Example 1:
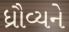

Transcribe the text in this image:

ધ્રૌવ્યને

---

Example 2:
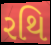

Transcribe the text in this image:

રથિ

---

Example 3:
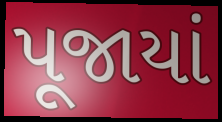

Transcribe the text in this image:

પૂજાયાં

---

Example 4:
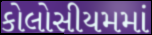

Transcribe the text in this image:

કોલોસીયમમાં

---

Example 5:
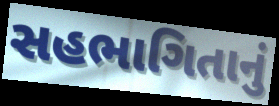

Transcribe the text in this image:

સહભાગિતાનું